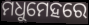
ମଧୁମେହରେ